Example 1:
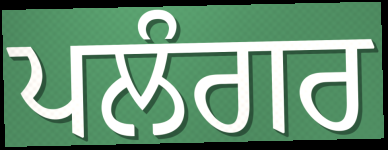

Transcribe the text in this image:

ਪਲੰਗਰ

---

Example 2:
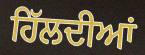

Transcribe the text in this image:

ਹਿੱਲਦੀਆਂ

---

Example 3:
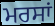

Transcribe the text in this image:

ਮਰਸਾਂ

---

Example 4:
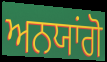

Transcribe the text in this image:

ਅਨਯਾਂਗੋ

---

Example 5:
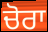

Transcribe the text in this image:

ਚੋਰਾ